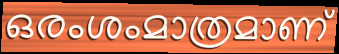
ഒരംശംമാത്രമാണ്